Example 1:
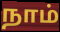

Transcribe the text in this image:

நாம்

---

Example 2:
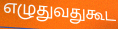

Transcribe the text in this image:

எழுதுவதுகூட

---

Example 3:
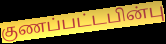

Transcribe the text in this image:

குணப்பட்டபின்பு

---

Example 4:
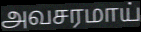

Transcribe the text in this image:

அவசரமாய்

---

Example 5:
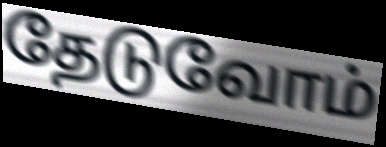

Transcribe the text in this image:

தேடுவோம்